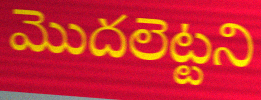
మొదలెట్టని